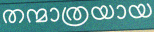
തന്മാത്രയായ